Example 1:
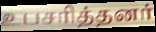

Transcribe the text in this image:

உபசரித்தனர்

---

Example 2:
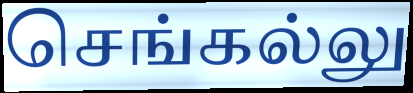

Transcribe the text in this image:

செங்கல்லு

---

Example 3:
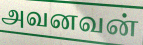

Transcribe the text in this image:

அவனவன்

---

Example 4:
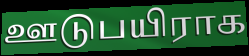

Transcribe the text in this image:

ஊடுபயிராக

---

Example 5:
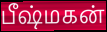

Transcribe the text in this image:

பீஷ்மகன்